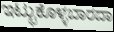
ಇಟ್ಟುಕೊಳ್ಳಬಾರದಾ